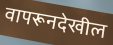
वापरूनदेखील